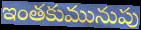
ఇంతకుమునుపు